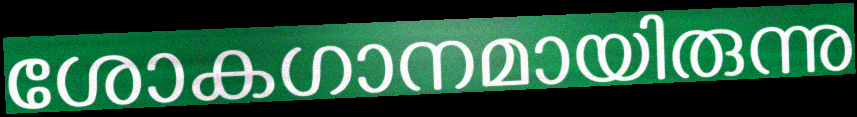
ശോകഗാനമായിരുന്നു